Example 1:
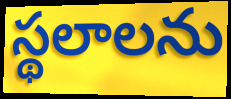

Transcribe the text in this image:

స్థలాలను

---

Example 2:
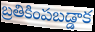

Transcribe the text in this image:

బ్రతికింపబడ్డాక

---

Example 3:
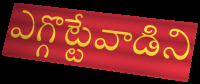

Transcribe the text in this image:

ఎగ్గొట్టేవాడిని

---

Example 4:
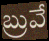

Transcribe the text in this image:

బ్రువే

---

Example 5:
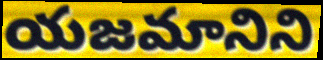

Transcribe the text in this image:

యజమానిని